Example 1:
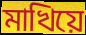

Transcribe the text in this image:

মাখিয়ে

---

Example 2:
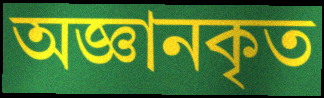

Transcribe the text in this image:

অজ্ঞানকৃত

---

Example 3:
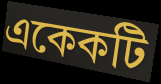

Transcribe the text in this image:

একেকটি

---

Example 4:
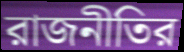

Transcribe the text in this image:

রাজনীতির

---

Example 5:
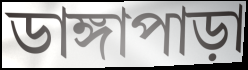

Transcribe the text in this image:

ডাঙ্গাপাড়া